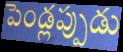
పెండ్లప్పుడు